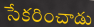
సేకరించాడు